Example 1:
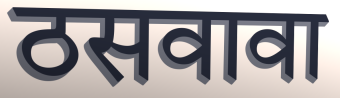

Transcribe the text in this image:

ठसवावा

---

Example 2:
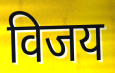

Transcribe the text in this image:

विजय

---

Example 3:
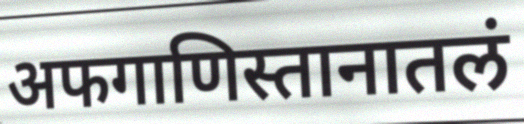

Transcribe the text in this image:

अफगाणिस्तानातलं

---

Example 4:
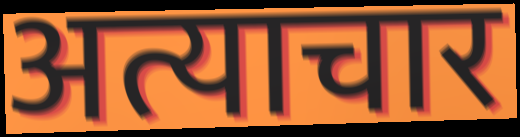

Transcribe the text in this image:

अत्याचार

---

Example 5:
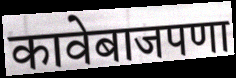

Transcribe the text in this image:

कावेबाजपणा